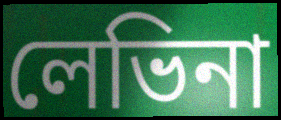
লেভিনা